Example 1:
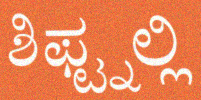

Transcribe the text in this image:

ಶಿಫ್ಟ್ನಲ್ಲಿ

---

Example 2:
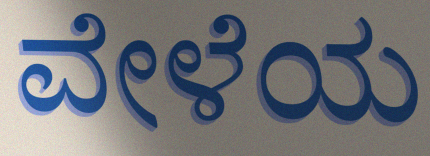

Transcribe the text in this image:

ವೇಳೆಯ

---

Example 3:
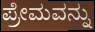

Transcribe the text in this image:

ಪ್ರೇಮವನ್ನು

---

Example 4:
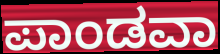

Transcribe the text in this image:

ಪಾಂಡವಾ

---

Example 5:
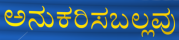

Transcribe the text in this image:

ಅನುಕರಿಸಬಲ್ಲವು